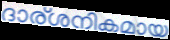
ദാര്ശനികമായ